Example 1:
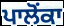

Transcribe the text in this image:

ਪਾਲੋਂਕਾ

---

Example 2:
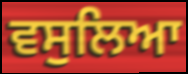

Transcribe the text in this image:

ਵਸੁਲਿਆ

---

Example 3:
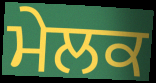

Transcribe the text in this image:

ਮੇਲਕ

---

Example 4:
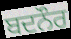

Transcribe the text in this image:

ਬਦਨੌਰ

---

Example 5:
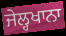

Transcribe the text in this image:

ਜੇਲ੍ਹਖਾਨਾ